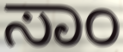
ಸಾಂ